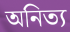
অনিত্য